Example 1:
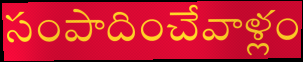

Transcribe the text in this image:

సంపాదించేవాళ్లం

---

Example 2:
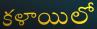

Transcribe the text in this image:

కళాయిలో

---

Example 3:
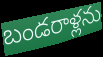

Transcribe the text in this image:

బండరాళ్లను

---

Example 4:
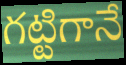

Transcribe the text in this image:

గట్టిగానే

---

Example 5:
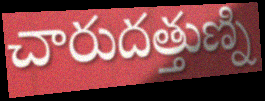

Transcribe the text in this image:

చారుదత్తుణ్ని